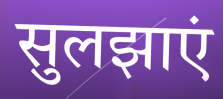
सुलझाएं